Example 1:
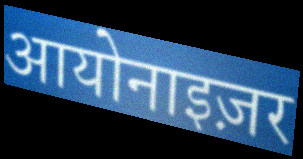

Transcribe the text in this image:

आयोनाइज़र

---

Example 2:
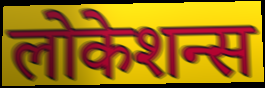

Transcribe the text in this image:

लोकेशन्स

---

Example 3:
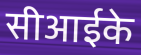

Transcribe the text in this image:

सीआईके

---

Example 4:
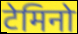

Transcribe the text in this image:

टेमिनो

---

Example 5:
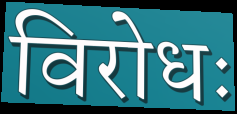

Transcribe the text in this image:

विरोधः